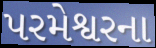
પરમેશ્વરના